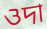
ওদা